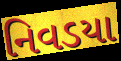
નિવડયા